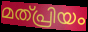
മത്പ്രിയം